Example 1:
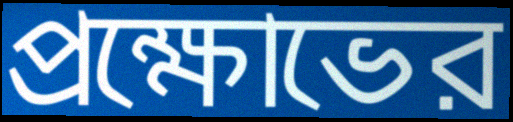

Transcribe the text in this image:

প্রক্ষোভের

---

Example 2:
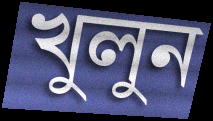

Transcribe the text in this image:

খুলুন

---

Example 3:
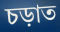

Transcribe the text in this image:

চড়াত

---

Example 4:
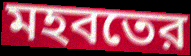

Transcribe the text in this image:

মহবতের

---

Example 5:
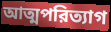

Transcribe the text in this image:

আত্মপরিত্যাগ